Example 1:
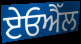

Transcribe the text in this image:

ਏਓਐੱਲ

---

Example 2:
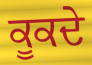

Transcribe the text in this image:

ਕੂਕਦੇ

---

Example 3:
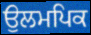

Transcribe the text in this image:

ਉਲਮਪਿਕ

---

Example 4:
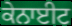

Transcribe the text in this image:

ਕੇਨਾਈਟ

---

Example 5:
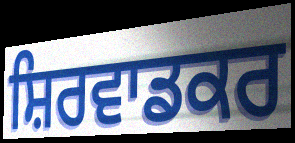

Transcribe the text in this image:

ਸ਼ਿਰਵਾਡਕਰ